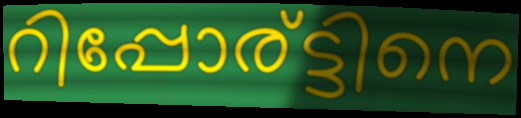
റിപ്പോര്ട്ടിനെ